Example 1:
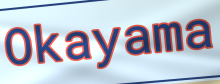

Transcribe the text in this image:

Okayama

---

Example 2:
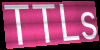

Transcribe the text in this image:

TTLs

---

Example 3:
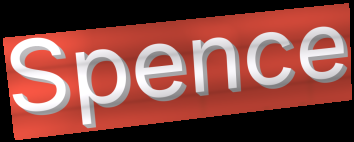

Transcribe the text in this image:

Spence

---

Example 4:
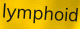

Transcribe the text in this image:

lymphoid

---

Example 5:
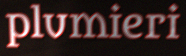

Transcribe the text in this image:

plumieri